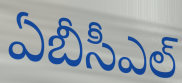
ఏబీసీఎల్